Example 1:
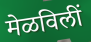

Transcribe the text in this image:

मेळविलीं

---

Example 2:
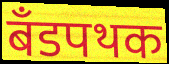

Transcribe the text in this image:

बँडपथक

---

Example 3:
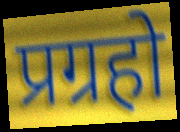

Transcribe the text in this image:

प्रग्रहो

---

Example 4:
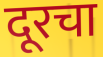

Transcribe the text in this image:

दूरचा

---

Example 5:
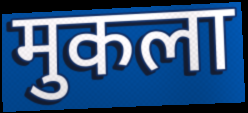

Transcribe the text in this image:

मुकला